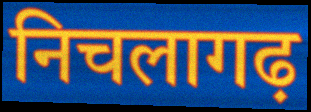
निचलागढ़